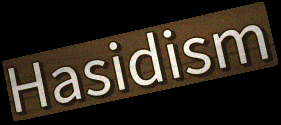
Hasidism